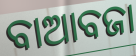
ବାଆବଜା